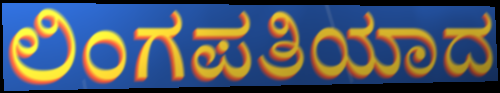
ಲಿಂಗಪತಿಯಾದ